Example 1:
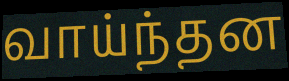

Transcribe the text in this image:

வாய்ந்தன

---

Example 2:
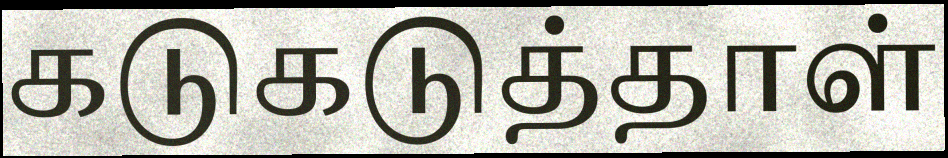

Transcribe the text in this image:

கடுகடுத்தாள்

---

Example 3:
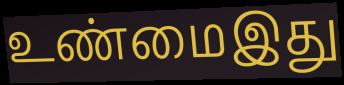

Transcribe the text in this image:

உண்மைஇது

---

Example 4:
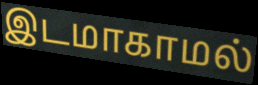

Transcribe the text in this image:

இடமாகாமல்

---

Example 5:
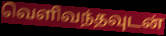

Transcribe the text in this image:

வெளிவந்தவுடன்